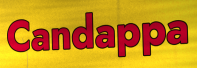
Candappa